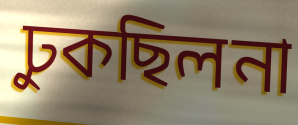
ঢুকছিলনা